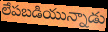
లేపబడియున్నాడు